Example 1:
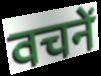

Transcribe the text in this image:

वचनें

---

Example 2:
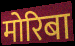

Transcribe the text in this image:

मोरिबा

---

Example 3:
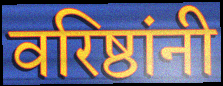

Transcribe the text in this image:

वरिष्ठांनी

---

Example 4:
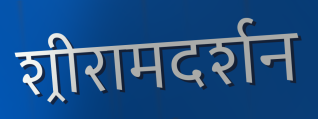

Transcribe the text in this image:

श्रीरामदर्शन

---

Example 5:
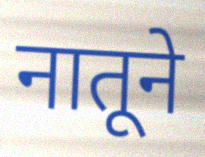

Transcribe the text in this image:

नातूने